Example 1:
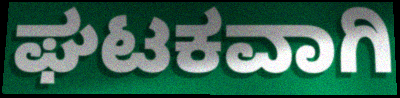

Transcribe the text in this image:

ಘಟಕವಾಗಿ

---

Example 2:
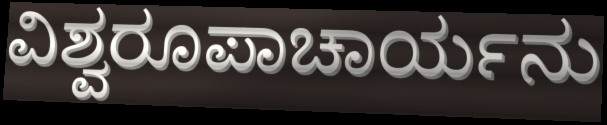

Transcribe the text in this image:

ವಿಶ್ವರೂಪಾಚಾರ್ಯನು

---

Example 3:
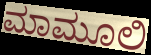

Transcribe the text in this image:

ಮಾಮೂಲಿ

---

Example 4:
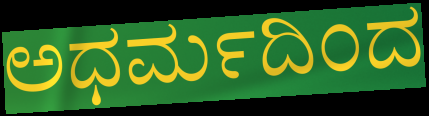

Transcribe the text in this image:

ಅಧರ್ಮದಿಂದ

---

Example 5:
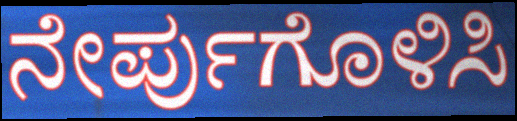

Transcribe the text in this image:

ನೇರ್ಪುಗೊಳಿಸಿ